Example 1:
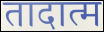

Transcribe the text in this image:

तादात्म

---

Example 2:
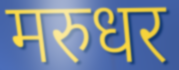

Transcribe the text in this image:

मरुधर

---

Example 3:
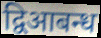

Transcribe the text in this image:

द्विआबन्ध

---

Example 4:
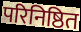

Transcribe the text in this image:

परिनिष्ठित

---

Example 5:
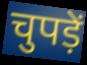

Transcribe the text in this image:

चुपड़ें